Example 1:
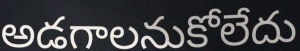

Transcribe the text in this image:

అడగాలనుకోలేదు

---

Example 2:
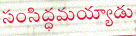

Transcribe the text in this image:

సంసిద్ధమయ్యాడు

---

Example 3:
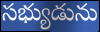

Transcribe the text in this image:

సభ్యుడును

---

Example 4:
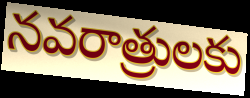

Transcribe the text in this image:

నవరాత్రులకు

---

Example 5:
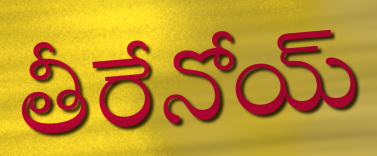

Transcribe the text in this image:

తీరేనోయ్